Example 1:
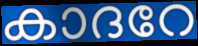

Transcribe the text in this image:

കാദറേ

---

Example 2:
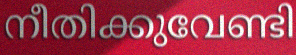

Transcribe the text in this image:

നീതിക്കുവേണ്ടി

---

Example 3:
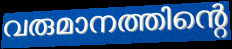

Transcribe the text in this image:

വരുമാനത്തിന്റെ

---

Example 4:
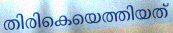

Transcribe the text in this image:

തിരികെയെത്തിയത്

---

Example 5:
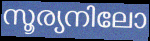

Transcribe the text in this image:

സൂര്യനിലോ